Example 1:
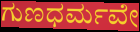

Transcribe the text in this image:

ಗುಣಧರ್ಮವೇ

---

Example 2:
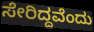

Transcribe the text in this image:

ಸೇರಿದ್ದವೆಂದು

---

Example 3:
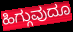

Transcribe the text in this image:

ಹಿಗ್ಗುವುದೂ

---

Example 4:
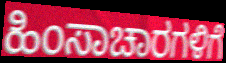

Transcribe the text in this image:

ಹಿಂಸಾಚಾರಗಳಿಗೆ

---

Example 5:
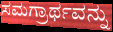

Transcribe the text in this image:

ಸಮಗ್ರಾರ್ಥವನ್ನು